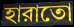
হারাতো